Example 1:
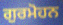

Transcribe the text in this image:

ਗੁਰਮੋਹਨ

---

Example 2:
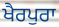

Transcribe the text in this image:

ਖੈਰਪੁਰਾ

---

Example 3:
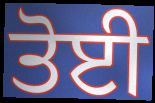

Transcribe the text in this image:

ਤੋਈ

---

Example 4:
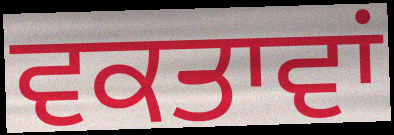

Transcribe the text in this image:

ਵਕਤਾਵਾਂ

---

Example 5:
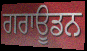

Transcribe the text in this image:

ਗਰਾਊਡਨ